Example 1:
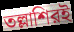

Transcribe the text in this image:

তল্লাশিরই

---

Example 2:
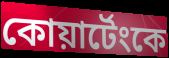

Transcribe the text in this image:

কোয়ার্টেংকে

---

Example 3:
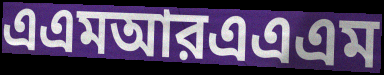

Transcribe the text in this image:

এএমআরএএএম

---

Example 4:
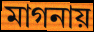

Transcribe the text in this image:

মাগনায়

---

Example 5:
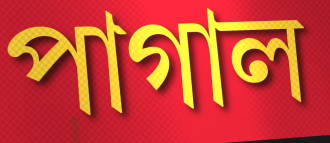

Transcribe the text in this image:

পাগাল